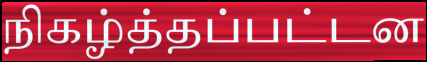
நிகழ்த்தப்பட்டன